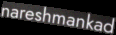
nareshmankad